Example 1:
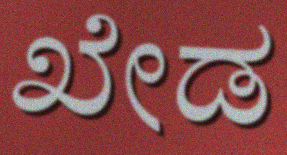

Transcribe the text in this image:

ಖೇಡ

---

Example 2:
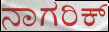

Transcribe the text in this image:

ನಾಗರಿಕ್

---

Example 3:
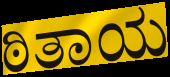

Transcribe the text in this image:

ಠಿತಾಯ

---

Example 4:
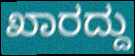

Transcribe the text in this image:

ಖಾರದ್ದು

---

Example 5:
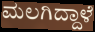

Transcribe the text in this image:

ಮಲಗಿದ್ದಾಳೆ